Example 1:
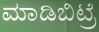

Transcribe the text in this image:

ಮಾಡಿಬಿಟ್ರೆ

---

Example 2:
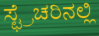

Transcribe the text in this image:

ಸ್ಟ್ರೆಚರಿನಲ್ಲಿ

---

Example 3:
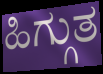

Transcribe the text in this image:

ಹಿಗ್ಗುತ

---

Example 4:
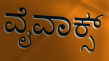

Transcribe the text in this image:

ವೈವಾಕ್ಸ್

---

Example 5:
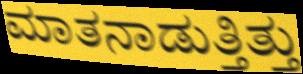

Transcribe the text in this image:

ಮಾತನಾಡುತ್ತಿತ್ತು